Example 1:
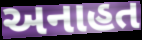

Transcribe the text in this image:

અનાહત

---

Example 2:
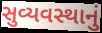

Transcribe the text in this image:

સુવ્યવસ્થાનું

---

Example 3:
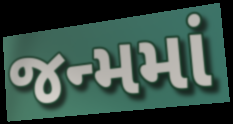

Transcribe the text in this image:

જન્મમાં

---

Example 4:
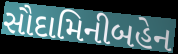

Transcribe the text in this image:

સૌદામિનીબહેન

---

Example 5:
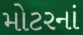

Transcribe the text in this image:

મોટરનાં